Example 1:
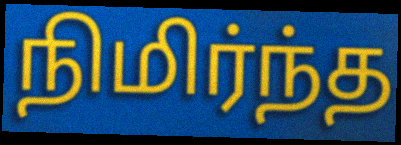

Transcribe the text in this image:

நிமிர்ந்த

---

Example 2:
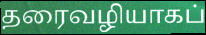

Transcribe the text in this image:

தரைவழியாகப்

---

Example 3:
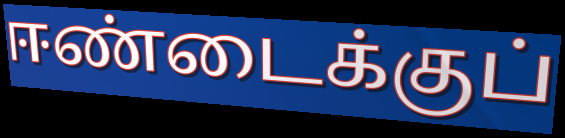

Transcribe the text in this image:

ஈண்டைக்குப்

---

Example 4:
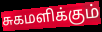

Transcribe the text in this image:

சுகமளிக்கும்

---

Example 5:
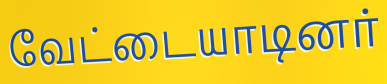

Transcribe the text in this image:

வேட்டையாடினர்